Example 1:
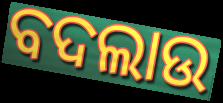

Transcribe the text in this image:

ବଦଲାଉ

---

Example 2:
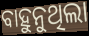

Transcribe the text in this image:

ବାହୁନୁଥିଲା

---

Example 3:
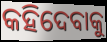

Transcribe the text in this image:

କହିଦେବାକୁ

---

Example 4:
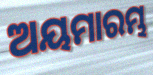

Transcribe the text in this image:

ଅୟମାରମ୍ଭ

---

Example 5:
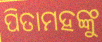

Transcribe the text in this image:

ପିତାମହଙ୍କୁ